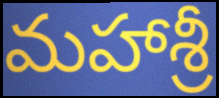
మహాశ్రీ